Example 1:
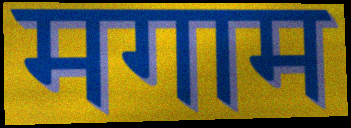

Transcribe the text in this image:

मगाम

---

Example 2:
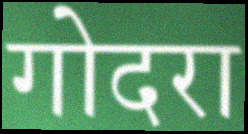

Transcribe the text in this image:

गोदरा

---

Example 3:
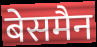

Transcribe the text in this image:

बेसमैन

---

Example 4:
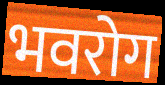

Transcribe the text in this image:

भवरोग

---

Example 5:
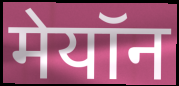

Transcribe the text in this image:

मेयॉन